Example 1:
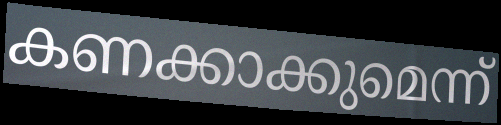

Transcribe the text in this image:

കണക്കാക്കുമെന്ന്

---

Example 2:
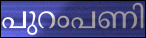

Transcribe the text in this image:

പുറംപണി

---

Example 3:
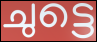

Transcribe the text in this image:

ചുട്ടെ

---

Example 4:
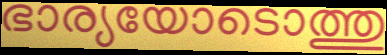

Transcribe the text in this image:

ഭാര്യയോടൊത്തു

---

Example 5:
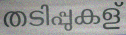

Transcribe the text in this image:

തടിപ്പുകള്